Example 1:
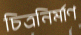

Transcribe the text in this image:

চিত্রনির্মাণ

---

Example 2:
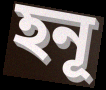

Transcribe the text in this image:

হনূ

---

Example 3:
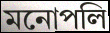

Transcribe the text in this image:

মনোপলি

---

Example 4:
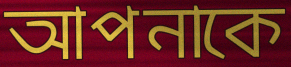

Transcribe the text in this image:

আপনাকে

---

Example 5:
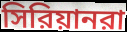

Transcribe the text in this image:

সিরিয়ানরা